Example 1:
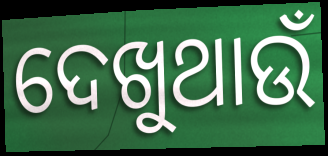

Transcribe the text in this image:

ଦେଖୁଥାଉଁ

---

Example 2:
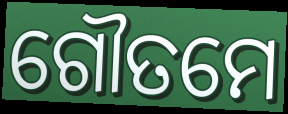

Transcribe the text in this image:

ଗୌତମେ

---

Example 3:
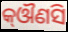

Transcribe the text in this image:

କ୍ଔଣସି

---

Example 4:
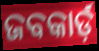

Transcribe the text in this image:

ଜବକାର୍ଡ଼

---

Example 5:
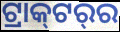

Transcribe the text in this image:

ଟ୍ରାକ୍‍ଟର୍‍ର